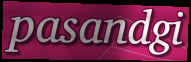
pasandgi